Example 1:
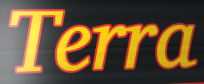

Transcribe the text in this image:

Terra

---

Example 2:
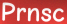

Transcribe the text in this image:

Prnsc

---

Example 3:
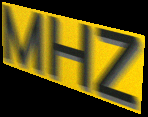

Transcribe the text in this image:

MHZ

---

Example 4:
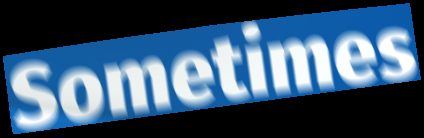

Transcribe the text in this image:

Sometimes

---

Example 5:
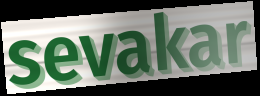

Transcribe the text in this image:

sevakar